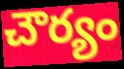
చౌర్యం